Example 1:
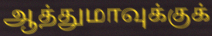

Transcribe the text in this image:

ஆத்துமாவுக்குக்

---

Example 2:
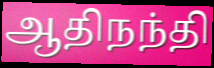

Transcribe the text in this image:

ஆதிநந்தி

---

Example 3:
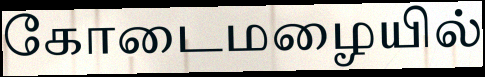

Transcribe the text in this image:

கோடைமழையில்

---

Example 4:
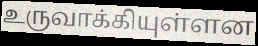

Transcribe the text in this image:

உருவாக்கியுள்ளன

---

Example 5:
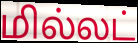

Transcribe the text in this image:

மில்லட்